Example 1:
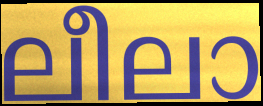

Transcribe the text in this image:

ലീലാ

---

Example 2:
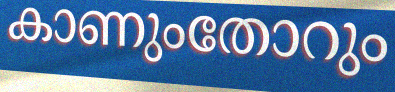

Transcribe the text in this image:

കാണുംതോറും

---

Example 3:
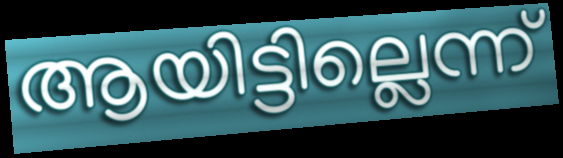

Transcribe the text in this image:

ആയിട്ടില്ലെന്ന്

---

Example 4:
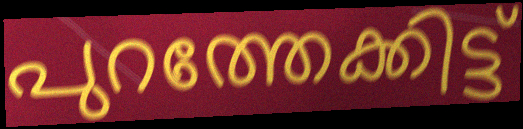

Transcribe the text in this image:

പുറത്തേക്കിട്ട്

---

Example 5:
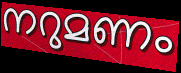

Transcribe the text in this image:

നറുമണം